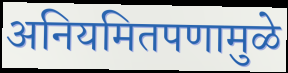
अनियमितपणामुळे